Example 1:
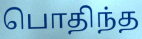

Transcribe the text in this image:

பொதிந்த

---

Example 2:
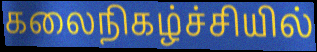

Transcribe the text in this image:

கலைநிகழ்ச்சியில்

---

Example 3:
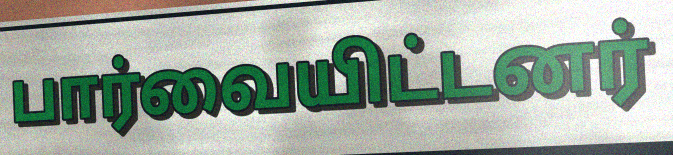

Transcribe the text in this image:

பார்வையிட்டனர்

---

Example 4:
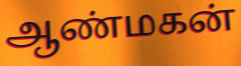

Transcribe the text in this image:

ஆண்மகன்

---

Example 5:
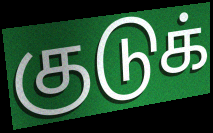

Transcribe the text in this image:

குடுக்